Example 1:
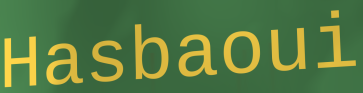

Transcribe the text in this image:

Hasbaoui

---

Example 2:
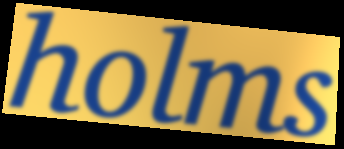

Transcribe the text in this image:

holms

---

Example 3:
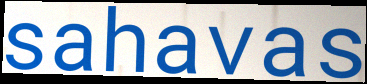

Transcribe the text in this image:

sahavas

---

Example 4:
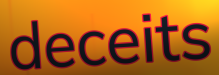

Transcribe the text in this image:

deceits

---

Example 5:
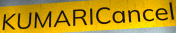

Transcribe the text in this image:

KUMARICancel